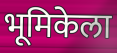
भूमिकेला